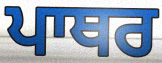
ਪਾਥਰ